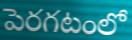
పెరగటంలో